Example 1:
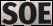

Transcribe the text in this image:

SOE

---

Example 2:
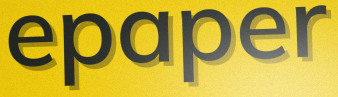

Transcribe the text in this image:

epaper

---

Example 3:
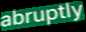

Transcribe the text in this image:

abruptly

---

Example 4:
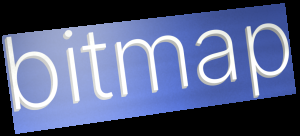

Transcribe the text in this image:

bitmap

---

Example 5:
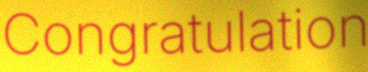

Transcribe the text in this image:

Congratulation